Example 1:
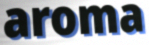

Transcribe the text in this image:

aroma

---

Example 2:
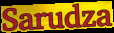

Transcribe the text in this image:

Sarudza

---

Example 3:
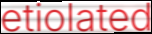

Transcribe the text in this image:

etiolated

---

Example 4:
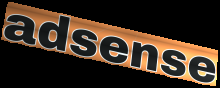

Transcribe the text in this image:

adsense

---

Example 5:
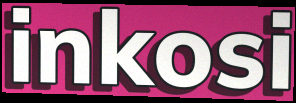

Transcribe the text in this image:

inkosi